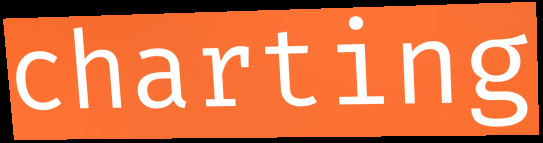
charting